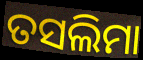
ତସଲିମା